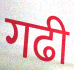
गढी